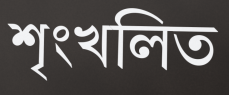
শৃংখলিত